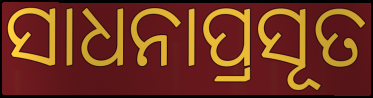
ସାଧନାପ୍ରସୂତ